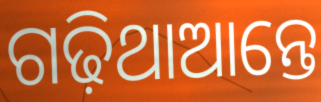
ଗଢ଼ିଥାଆନ୍ତେ